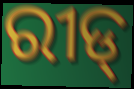
ରୀଡ୍